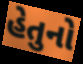
હેતુનો